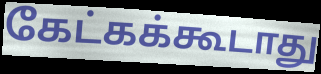
கேட்கக்கூடாது